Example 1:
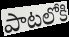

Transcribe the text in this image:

పాటలోకి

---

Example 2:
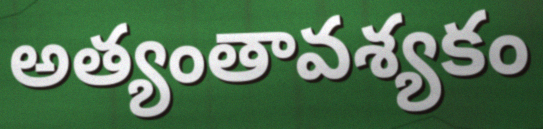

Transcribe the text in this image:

అత్యంతావశ్యకం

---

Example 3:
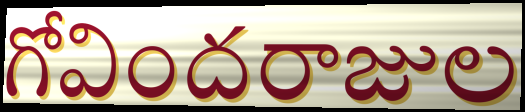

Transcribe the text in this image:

గోవిందరాజుల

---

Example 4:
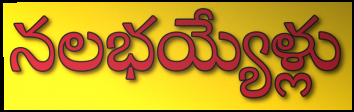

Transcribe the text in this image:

నలభయ్యేళ్లు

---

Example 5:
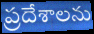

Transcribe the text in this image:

ప్రదేశాలను